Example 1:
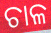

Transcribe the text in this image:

ଚାଳ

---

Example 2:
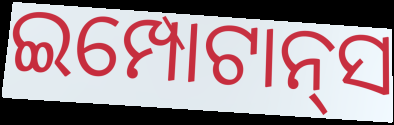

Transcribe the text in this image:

ଇମ୍ପୋଟାନ୍‌ସ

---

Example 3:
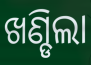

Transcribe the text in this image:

ଖଣ୍ଡିଲା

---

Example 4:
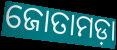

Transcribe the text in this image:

ଜୋତାମଡ଼ା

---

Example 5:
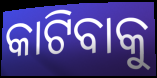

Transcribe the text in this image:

କାଟିବାକୁ